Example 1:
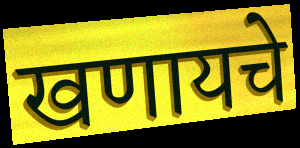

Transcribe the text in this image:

खणायचे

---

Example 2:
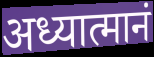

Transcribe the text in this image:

अध्यात्मानं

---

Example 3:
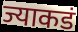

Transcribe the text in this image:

ज्याकडं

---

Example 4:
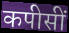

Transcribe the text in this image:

कपीसीं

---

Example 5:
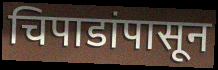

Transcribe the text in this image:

चिपाडांपासून